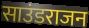
साउंडराजन